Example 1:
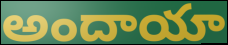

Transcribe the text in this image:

అందాయా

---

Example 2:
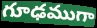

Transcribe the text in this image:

గూఢముగా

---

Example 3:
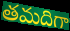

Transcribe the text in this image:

తమదిగా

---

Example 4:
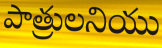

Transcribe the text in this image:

పాత్రులనియు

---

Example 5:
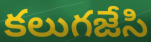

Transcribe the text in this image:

కలుగజేసి